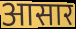
आसार